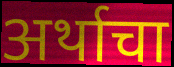
अर्थाचा